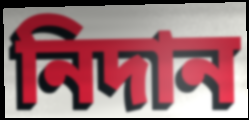
নিদান